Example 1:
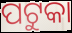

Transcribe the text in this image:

ପଟୁକା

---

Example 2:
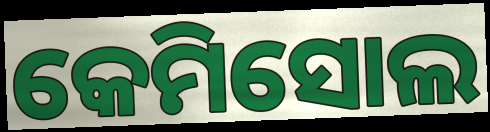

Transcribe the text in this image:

କେମିସୋଲ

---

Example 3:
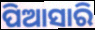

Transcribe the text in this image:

ପିଆସାରି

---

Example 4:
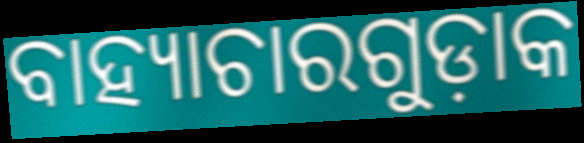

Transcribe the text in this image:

ବାହ୍ୟାଚାରଗୁଡ଼ାକ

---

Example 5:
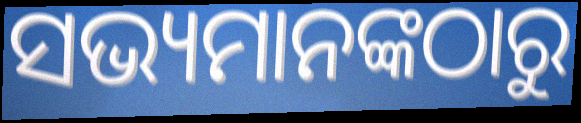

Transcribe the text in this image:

ସଭ୍ୟମାନଙ୍କଠାରୁ